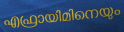
എഫ്രായിമിനെയും